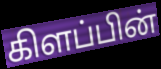
கிளப்பின்